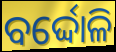
ବର୍ଦ୍ଦୋଳି